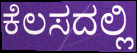
ಕೆಲಸದಲ್ಲಿ